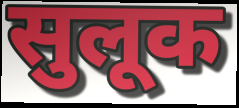
सुलूक